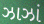
ઝાઝાં